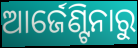
ଆର୍ଜେଣ୍ଟିନାରୁ